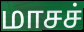
மாசச்